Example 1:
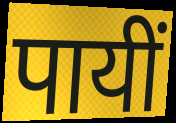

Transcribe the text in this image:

पायीं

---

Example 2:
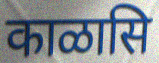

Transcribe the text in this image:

काळासि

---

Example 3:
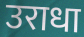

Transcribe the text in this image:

उराधा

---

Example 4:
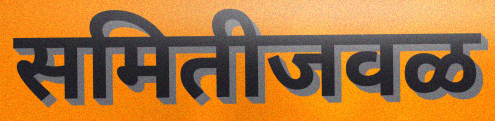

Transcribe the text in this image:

समितीजवळ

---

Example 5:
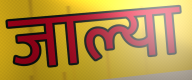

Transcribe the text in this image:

जाल्या